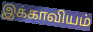
இக்காவியம்